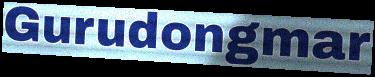
Gurudongmar